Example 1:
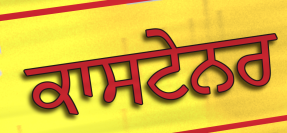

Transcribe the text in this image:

ਕਾਸਟੇਨਰ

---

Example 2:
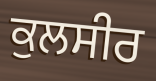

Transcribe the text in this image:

ਕੁਲਸੀਰ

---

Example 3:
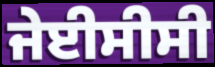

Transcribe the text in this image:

ਜੇਈਸੀਸੀ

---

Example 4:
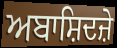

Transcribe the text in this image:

ਅਬਾਸ਼ਿਦਜ਼ੇ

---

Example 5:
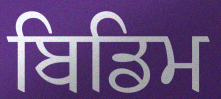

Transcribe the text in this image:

ਬਿਡਿਮ